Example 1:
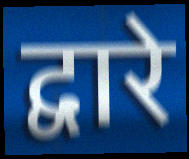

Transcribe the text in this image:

द्वारे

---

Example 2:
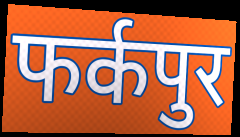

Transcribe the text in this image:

फर्कपुर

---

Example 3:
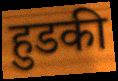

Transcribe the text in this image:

हुडकी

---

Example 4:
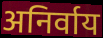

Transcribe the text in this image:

अनिर्वाय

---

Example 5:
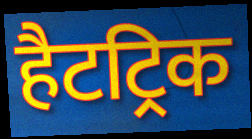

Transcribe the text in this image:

हैटट्रिक